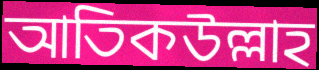
আতিকউল্লাহ